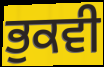
ਭੁਕਵੀ